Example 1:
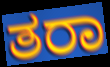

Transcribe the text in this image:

ತರಾ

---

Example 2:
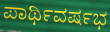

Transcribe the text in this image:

ಪಾರ್ಥಿವರ್ಷಭ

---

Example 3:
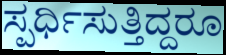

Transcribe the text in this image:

ಸ್ಪರ್ಧಿಸುತ್ತಿದ್ದರೂ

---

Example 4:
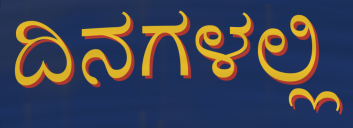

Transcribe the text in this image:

ದಿನಗಳಲ್ಲಿ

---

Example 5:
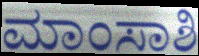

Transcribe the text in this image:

ಮಾಂಸಾಶಿ